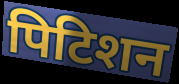
पिटिशन